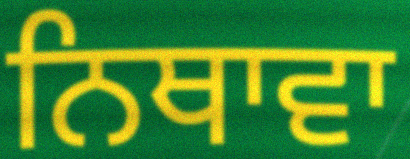
ਨਿਥਾਵਾ